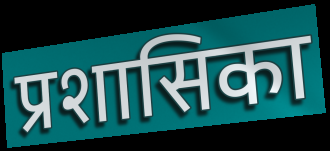
प्रशासिका